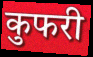
कुफरी